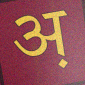
अ़